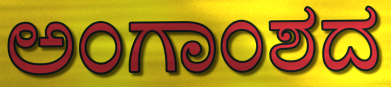
ಅಂಗಾಂಶದ